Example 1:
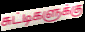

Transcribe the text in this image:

சுட்டிகளுக்கு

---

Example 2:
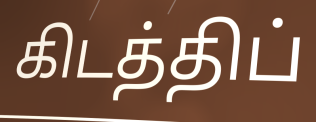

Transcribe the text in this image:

கிடத்திப்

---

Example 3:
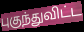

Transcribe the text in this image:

புகுந்துவிட்ட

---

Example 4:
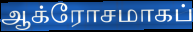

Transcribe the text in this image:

ஆக்ரோசமாகப்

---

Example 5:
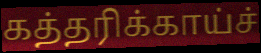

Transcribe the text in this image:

கத்தரிக்காய்ச்